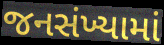
જનસંખ્યામાં